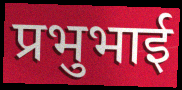
प्रभुभाई